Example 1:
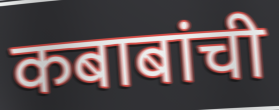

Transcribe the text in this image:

कबाबांची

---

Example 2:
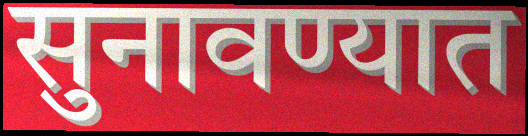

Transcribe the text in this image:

सुनावण्यात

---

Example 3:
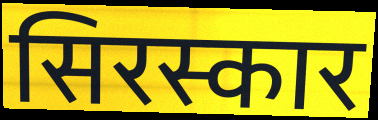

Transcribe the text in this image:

सिरस्कार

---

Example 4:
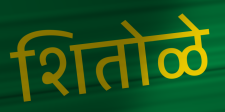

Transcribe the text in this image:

शितोळे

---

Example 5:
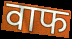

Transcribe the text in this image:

वाफ